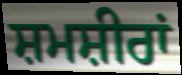
ਸ਼ਮਸ਼ੀਰਾਂ